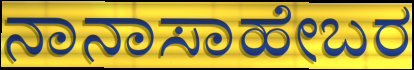
ನಾನಾಸಾಹೇಬರ